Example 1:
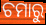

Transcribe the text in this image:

ଚମାରୁ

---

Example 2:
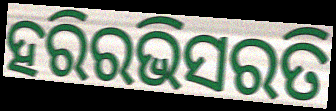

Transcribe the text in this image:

ହରିରଭିସରତି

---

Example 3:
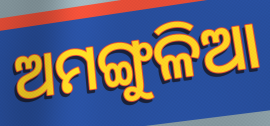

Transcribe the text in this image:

ଅମଙ୍ଗୁଳିଆ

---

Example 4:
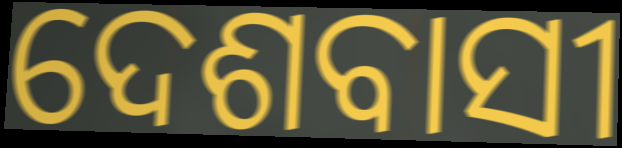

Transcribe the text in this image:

ଦେଶବାସୀ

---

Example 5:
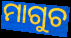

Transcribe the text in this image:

ମାଗୁଚ